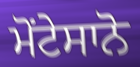
ਮੋਂਟੇਸਾਨੋ